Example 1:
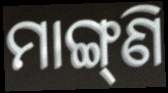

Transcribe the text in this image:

ମାଙ୍ଗ୍‌ଣି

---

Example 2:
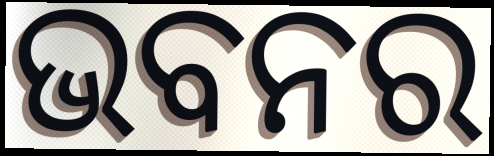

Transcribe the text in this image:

ଭବନର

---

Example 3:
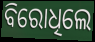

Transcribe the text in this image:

ବିରୋଧିଲେ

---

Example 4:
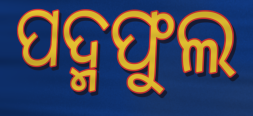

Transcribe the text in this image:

ପଦ୍ମଫୁଲ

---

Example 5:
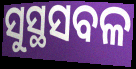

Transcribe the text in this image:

ସୁସ୍ଥସବଳ